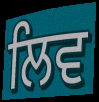
ਲਿਵ